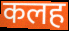
कलह